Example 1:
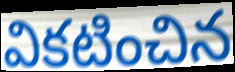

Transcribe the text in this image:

వికటించిన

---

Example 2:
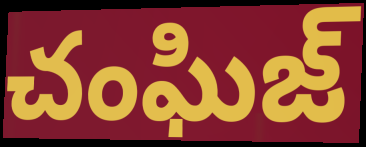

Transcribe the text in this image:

చంఘిజ్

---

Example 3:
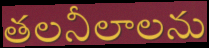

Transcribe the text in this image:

తలనీలాలను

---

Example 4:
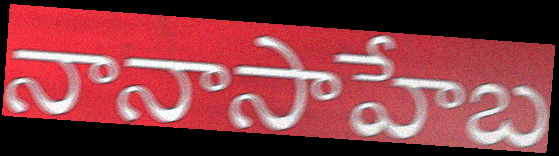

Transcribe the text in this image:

నానాసాహేబ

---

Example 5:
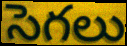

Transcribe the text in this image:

సెగలు